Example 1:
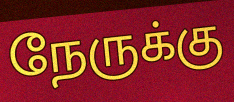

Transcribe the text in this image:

நேருக்கு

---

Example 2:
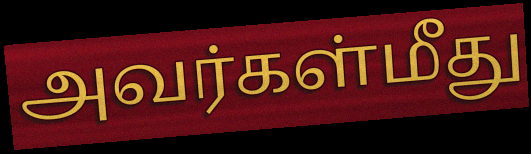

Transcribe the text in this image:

அவர்கள்மீது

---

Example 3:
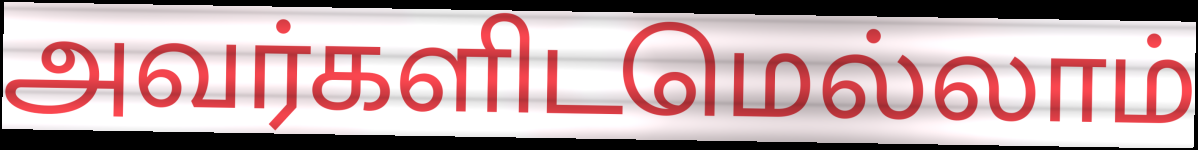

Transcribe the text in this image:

அவர்களிடமெல்லாம்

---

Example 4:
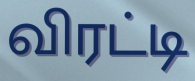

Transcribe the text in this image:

விரட்டி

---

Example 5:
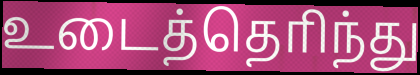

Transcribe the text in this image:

உடைத்தெரிந்து